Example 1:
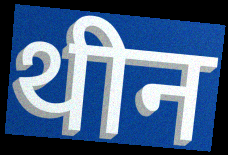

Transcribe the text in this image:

थीन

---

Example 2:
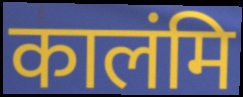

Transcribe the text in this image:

कालंमि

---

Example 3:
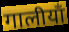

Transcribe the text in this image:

गालीयाँ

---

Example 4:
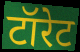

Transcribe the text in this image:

टॉरेट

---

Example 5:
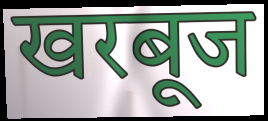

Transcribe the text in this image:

खरबूज